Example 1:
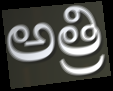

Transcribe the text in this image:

అత్రి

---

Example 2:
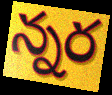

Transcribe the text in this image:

న్నర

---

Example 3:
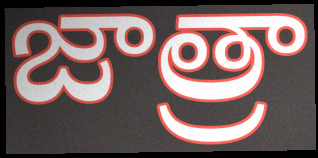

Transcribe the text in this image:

జాత్రా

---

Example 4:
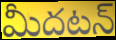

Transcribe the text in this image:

మీదటన్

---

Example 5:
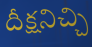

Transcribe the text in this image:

దీక్షనిచ్చి